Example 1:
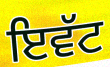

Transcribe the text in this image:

ਇਵੱਟ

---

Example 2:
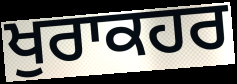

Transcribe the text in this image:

ਖੁਰਾਕਹਰ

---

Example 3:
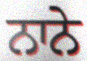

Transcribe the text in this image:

ਨਾਨੇ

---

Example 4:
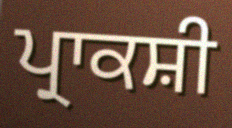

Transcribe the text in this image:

ਪ੍ਰਾਕਸ਼ੀ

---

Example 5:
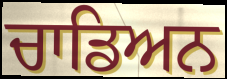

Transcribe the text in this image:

ਚਾਡਿਅਨ